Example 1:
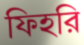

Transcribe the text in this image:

ফিহরি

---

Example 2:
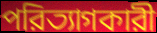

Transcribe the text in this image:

পরিত্যাগকারী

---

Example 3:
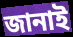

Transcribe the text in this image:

জানাই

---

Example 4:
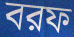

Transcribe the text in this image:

বরফ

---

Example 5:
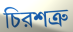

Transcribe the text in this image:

চিরশত্রু